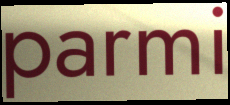
parmi